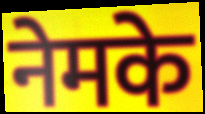
नेमके